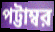
পট্টাম্বর